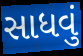
સાધવું